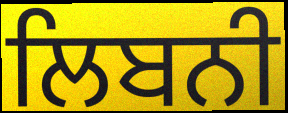
ਲਿਬਨੀ